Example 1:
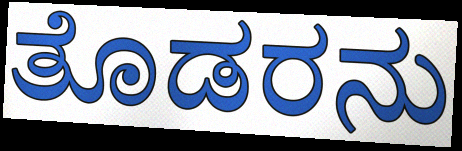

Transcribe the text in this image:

ತೊಡರನು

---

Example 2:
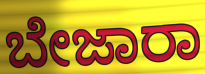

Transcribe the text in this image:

ಬೇಜಾರಾ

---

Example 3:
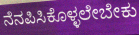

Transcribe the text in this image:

ನೆನಪಿಸಿಕೊಳ್ಳಲೇಬೇಕು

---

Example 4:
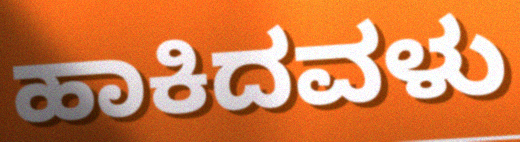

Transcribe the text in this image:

ಹಾಕಿದವಳು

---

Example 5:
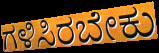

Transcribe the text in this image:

ಗಳಿಸಿರಬೇಕು